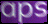
aps